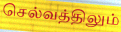
செல்வத்திலும்